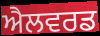
ਐਲਵਰਡ